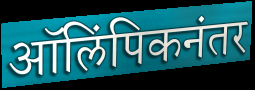
ऑलिंपिकनंतर